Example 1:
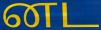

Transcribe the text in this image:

னட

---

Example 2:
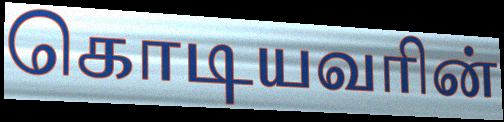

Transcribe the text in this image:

கொடியவரின்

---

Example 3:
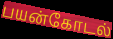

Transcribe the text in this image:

பயன்கோடல்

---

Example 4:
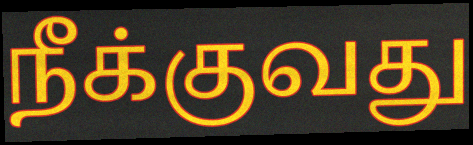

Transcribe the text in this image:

நீக்குவது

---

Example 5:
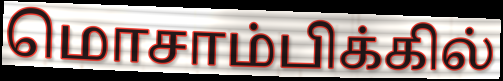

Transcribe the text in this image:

மொசாம்பிக்கில்